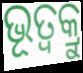
ଭୂତ୍ଵକ୍ରୁ